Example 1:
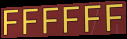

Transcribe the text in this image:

FFFFFF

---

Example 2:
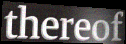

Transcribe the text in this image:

thereof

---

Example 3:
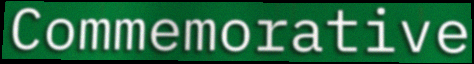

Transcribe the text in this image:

Commemorative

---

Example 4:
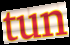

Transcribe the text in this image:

tun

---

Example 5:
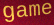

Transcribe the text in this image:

game